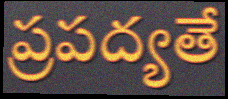
ప్రపద్యతే